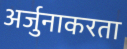
अर्जुनाकरता